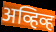
अव्हिव्ह